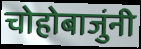
चोहोबाजुंनी